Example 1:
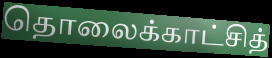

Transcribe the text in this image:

தொலைக்காட்சித்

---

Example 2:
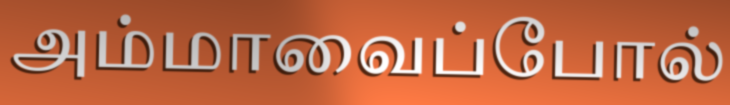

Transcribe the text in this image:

அம்மாவைப்போல்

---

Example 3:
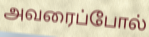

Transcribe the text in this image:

அவரைப்போல்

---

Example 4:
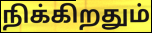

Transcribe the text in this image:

நிக்கிறதும்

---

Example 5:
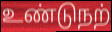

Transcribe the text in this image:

உண்டுநற்